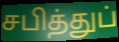
சபித்துப்